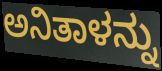
ಅನಿತಾಳನ್ನು